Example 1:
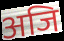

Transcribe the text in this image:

अजि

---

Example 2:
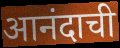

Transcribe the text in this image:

आनंदाची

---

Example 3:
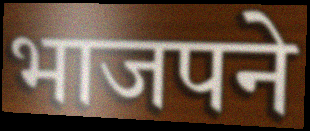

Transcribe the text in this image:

भाजपने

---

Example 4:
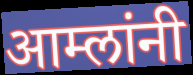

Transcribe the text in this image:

आम्लांनी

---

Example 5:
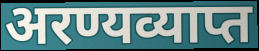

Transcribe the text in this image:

अरण्यव्याप्त